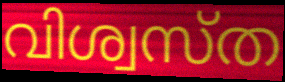
വിശ്വസ്ത